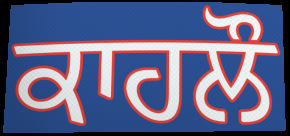
ਕਾਹਲੌ